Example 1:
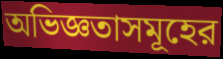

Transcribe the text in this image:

অভিজ্ঞতাসমূহের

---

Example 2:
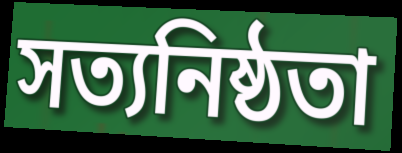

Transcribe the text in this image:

সত্যনিষ্ঠতা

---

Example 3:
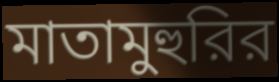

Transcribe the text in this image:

মাতামুহুরির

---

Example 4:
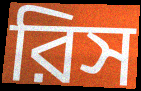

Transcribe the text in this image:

রিস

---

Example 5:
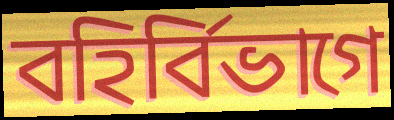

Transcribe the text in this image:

বহির্বিভাগে